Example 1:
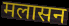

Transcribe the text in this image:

मलासन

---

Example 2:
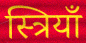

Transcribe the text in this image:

स्त्रियाँ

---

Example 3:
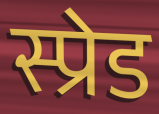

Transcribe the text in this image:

स्‍प्रेड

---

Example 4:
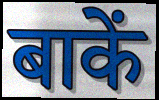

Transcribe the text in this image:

बाकें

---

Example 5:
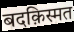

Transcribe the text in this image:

बदक़िस्मत